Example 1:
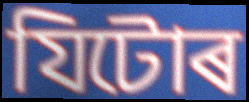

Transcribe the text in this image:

যিটোৰ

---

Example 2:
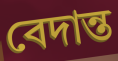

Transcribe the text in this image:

বেদান্ত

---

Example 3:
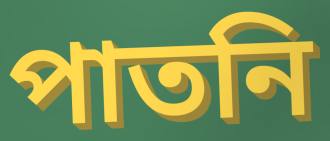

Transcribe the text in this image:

পাতনি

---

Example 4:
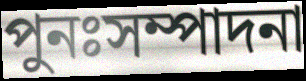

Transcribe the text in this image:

পুনঃসম্পাদনা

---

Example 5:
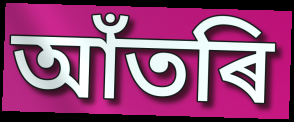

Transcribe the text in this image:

আঁতৰি